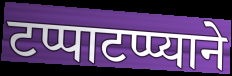
टप्पाटप्प्याने